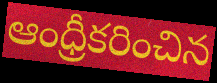
ఆంధ్రీకరించిన